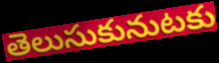
తెలుసుకునుటకు